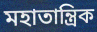
মহাতান্ত্রিক